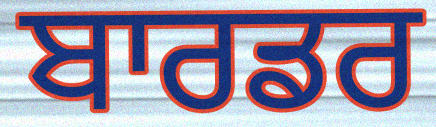
ਬਾਰਡਰ